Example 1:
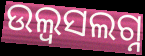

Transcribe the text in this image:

ଉଲ୍ୱସଲଗ୍ନ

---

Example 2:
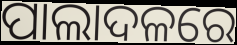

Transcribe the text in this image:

ପାଲାଦଳରେ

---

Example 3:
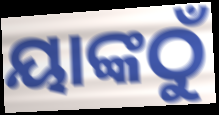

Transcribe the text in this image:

ୟାଙ୍କଠୁଁ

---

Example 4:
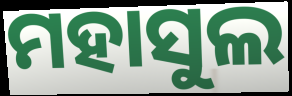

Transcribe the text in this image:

ମହାସୁଲ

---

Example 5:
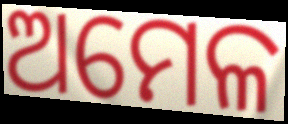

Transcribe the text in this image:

ଅମେଳ